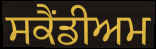
ਸਕੈਂਡੀਅਮ